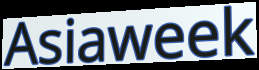
Asiaweek